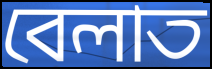
বেলাত